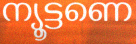
ന്യൂട്ടണെ